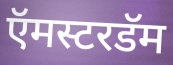
ऍमस्टरडॅम